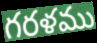
గరళము